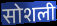
सोशली